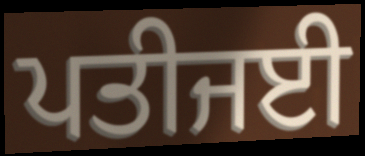
ਪਤੀਜਈ